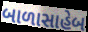
બાળાસાહેબ